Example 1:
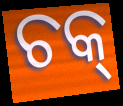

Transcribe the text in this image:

ଚକ୍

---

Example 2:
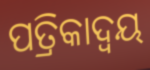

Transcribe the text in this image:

ପତ୍ରିକାଦ୍ୱୟ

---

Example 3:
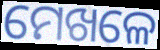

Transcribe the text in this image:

ମେଖଳେ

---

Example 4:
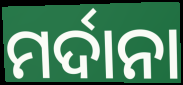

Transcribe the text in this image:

ମର୍ଦାନା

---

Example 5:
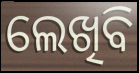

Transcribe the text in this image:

ଲେଖିବି